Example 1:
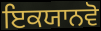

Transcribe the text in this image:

ਇਕਯਾਨਵੋ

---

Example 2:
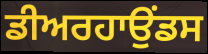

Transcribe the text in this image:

ਡੀਅਰਹਾਉਂਡਸ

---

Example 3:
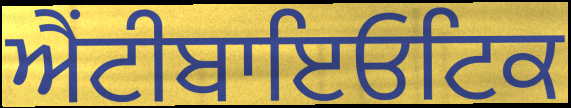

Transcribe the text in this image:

ਐਂਟੀਬਾਇਓਟਿਕ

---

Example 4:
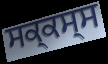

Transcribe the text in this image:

ਸਕ੍ਕਸ੍ਸ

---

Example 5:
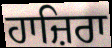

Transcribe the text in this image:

ਹਾਜ਼ਿਰਾ